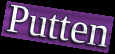
Putten